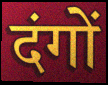
दंगों